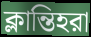
ক্লান্তিহরা